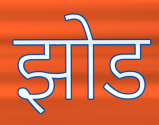
झोड